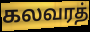
கலவரத்